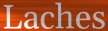
Laches